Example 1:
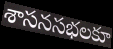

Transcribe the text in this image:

శాసనసభలకూ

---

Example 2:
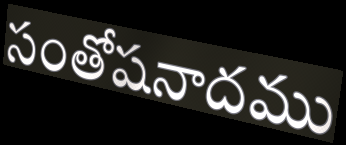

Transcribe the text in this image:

సంతోషనాదము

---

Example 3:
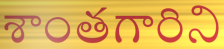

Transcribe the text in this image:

శాంతగారిని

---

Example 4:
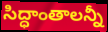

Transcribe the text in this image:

సిద్ధాంతాలన్నీ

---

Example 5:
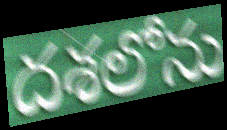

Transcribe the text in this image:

దశలోను